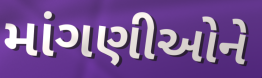
માંગણીઓને